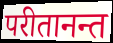
परीतानन्त